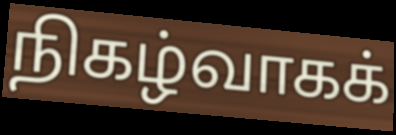
நிகழ்வாகக்